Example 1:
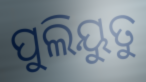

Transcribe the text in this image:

ପୁଲିୟୁତୁ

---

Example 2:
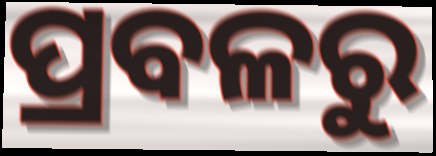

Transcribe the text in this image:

ପ୍ରବଳରୁ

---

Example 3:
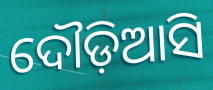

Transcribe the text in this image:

ଦୌଡ଼ିଆସି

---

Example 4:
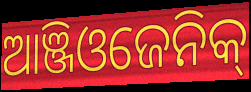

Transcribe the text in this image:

ଆଞ୍ଜିଓଜେନିକ୍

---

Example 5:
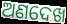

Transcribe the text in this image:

ଅଣଦେଖ